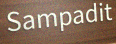
Sampadit